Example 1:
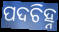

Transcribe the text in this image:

ପଦଚିହ୍ନ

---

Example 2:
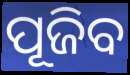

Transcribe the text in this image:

ପୂଜିବ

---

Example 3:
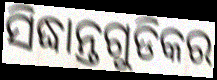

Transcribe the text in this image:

ସିଦ୍ଧାନ୍ତଗୁଡିକର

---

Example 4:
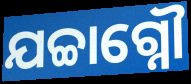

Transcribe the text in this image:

ଯଚ୍ଚାଗ୍ନୌ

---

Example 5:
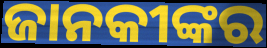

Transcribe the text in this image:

ଜାନକୀଙ୍କର